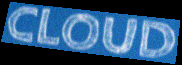
CLOUD